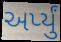
અર્પ્યું